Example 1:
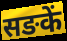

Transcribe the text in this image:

सङकें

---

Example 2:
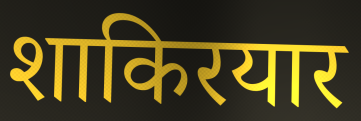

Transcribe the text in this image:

शाकिरयार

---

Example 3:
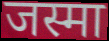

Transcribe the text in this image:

जस्मा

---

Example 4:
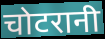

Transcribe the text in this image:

चोटरानी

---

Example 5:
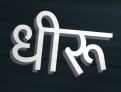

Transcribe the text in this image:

धीरू